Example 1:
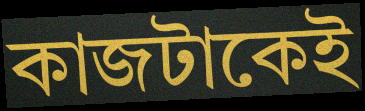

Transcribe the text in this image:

কাজটাকেই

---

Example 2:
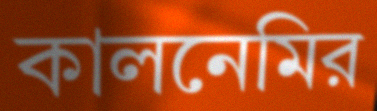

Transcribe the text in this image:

কালনেমির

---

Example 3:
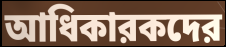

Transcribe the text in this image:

আধিকারকদের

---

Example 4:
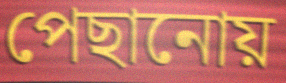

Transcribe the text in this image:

পেছানোয়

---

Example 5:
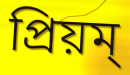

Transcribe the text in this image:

প্রিয়ম্